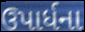
ઉપાર્ધના